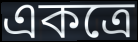
একত্রে